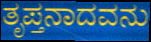
ತೃಪ್ತನಾದವನು